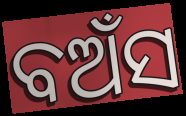
ବଅଁସ